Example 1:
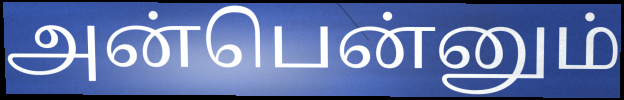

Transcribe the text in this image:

அன்பென்னும்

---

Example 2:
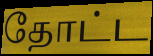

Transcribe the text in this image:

தோட்ட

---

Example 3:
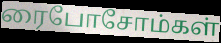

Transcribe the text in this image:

ரைபோசோம்கள்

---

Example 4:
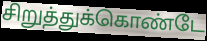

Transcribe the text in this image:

சிறுத்துக்கொண்டே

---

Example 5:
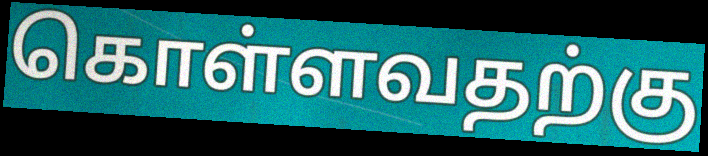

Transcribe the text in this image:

கொள்ளவதற்கு